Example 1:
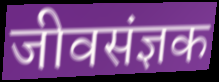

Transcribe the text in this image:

जीवसंज्ञक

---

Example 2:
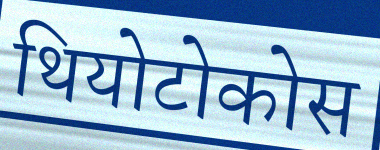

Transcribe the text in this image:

थियोटोकोस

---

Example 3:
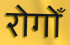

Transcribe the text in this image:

रोगोँ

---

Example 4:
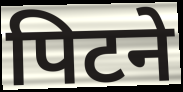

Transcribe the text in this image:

पिटने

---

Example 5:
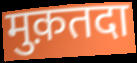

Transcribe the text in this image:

मुक़तदा